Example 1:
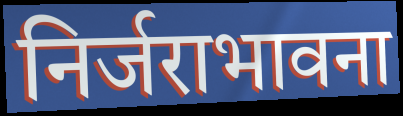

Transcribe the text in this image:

निर्जराभावना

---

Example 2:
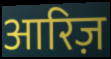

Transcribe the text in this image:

आरिज़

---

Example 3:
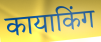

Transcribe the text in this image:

कायाकिंग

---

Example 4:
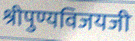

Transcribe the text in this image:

श्रीपुण्यविजयजी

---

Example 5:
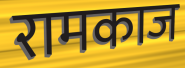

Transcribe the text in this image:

रामकाज